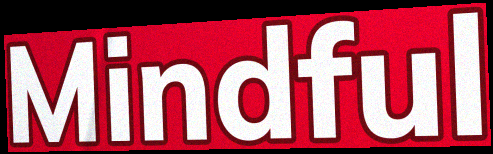
Mindful